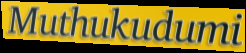
Muthukudumi